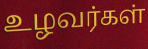
உழவர்கள்